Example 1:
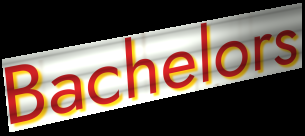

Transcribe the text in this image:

Bachelors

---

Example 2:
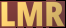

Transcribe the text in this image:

LMR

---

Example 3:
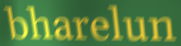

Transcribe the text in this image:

bharelun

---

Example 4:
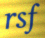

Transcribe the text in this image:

rsf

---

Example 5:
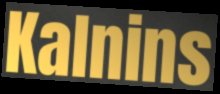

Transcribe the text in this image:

Kalnins